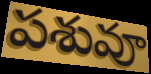
పశువూ